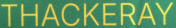
THACKERAY